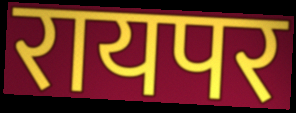
रायपर